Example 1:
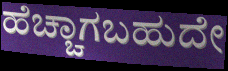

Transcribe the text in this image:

ಹೆಚ್ಚಾಗಬಹುದೇ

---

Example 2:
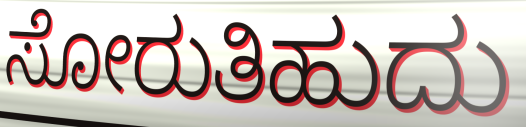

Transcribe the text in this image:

ಸೋರುತಿಹುದು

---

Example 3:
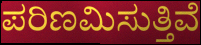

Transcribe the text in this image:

ಪರಿಣಮಿಸುತ್ತಿವೆ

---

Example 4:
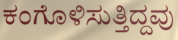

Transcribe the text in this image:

ಕಂಗೊಳಿಸುತ್ತಿದ್ದವು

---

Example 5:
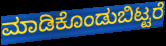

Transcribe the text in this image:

ಮಾಡಿಕೊಂಡುಬಿಟ್ಟರೆ